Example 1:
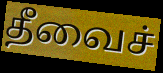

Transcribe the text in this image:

தீவைச்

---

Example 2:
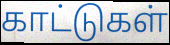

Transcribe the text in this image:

காட்டுகள்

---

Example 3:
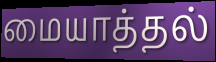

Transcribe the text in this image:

மையாத்தல்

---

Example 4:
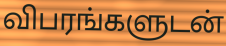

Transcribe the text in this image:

விபரங்களுடன்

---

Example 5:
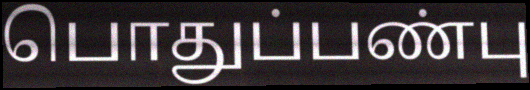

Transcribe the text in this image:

பொதுப்பண்பு